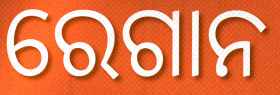
ରେଗାନ